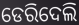
ଡେରିଦେଲି